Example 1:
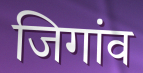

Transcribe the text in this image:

जिगांव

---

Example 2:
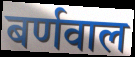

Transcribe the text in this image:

बर्णवाल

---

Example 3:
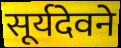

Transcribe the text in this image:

सूर्यदेवने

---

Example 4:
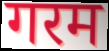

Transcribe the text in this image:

गरम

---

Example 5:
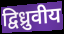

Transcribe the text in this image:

द्विध्रुवीय